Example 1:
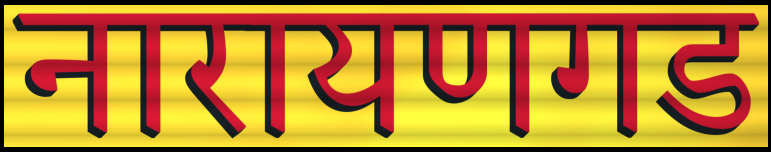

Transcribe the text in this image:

नारायणगड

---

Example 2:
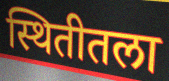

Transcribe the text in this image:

स्थितीतला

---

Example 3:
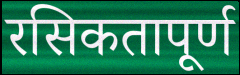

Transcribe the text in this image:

रसिकतापूर्ण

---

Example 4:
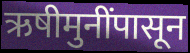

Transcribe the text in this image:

ऋषीमुनींपासून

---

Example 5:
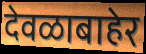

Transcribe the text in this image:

देवळाबाहेर